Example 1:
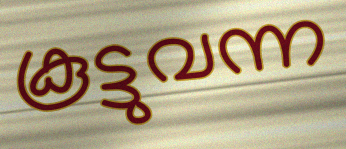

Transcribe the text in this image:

കൂട്ടുവന്ന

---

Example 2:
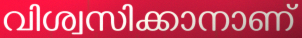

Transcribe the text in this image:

വിശ്വസിക്കാനാണ്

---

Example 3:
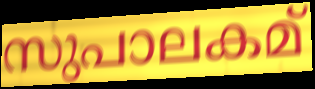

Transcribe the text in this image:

സുപാലകമ്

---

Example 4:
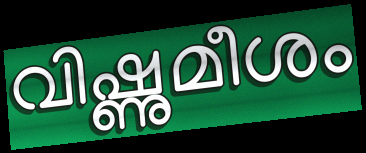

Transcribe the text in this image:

വിഷ്ണുമീശം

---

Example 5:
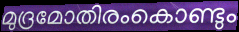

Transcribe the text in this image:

മുദ്രമോതിരംകൊണ്ടും